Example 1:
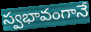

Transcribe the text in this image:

స్వభావంగానే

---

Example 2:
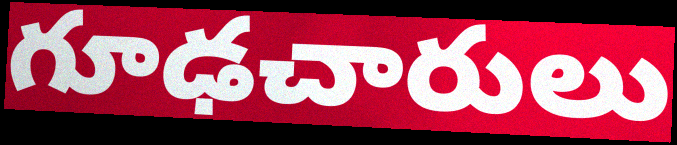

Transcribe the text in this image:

గూఢచారులు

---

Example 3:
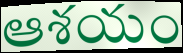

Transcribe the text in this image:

ఆశయం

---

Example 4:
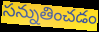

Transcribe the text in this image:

సన్నుతించడం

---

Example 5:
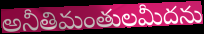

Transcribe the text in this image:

అనీతిమంతులమీదను